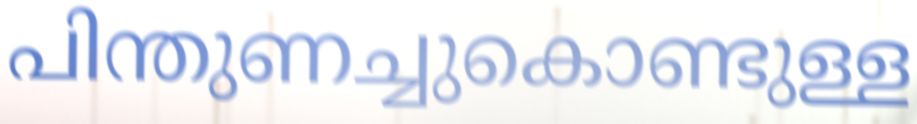
പിന്തുണച്ചുകൊണ്ടുള്ള